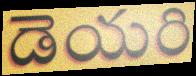
డెయరి